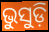
ଭୁସୁଡ଼ି